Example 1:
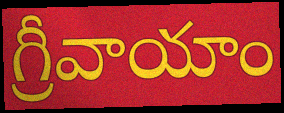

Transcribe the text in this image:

గ్రీవాయాం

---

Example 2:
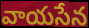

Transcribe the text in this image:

వాయసేన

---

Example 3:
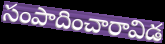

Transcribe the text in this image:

సంపాదించారావిడ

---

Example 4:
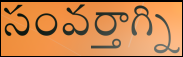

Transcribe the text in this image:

సంవర్తాగ్ని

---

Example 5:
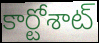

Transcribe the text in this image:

కార్టోశాట్